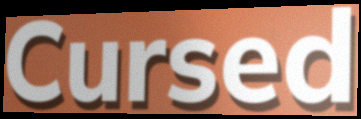
Cursed